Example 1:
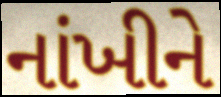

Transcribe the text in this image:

નાંખીને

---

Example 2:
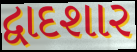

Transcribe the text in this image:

દ્વાદશાર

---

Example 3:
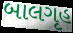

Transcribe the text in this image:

બાલગૃહ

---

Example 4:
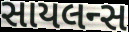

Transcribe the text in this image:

સાયલન્સ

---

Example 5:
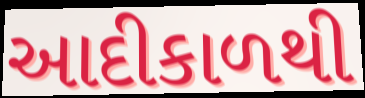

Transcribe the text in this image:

આદીકાળથી